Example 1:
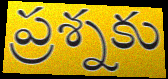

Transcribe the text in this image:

ప్రశ్నకు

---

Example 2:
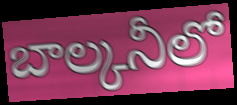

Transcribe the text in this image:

బాల్కనీలో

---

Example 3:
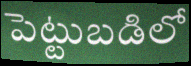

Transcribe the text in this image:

పెట్టుబడిలో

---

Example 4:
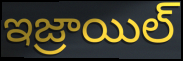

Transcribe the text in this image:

ఇజ్రాయిల్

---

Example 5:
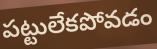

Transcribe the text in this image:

పట్టులేకపోవడం